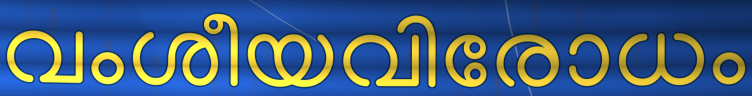
വംശീയവിരോധം